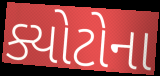
ક્યોટોના